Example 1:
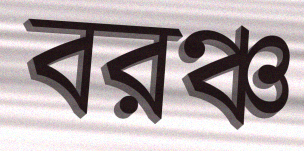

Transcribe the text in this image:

বরঞ্চ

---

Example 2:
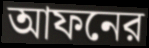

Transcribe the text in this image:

আফনের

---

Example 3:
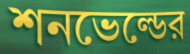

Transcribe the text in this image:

শনভেল্ডের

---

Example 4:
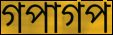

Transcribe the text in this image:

গপাগপ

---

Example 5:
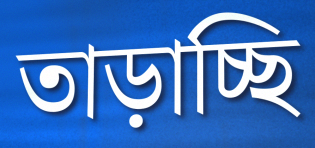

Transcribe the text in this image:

তাড়াচ্ছি